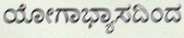
ಯೋಗಾಭ್ಯಾಸದಿಂದ